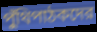
পুঁথিপাঠকদের